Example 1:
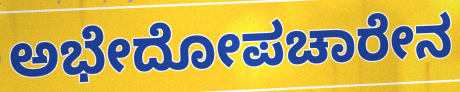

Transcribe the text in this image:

ಅಭೇದೋಪಚಾರೇನ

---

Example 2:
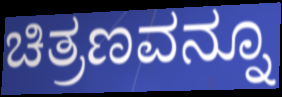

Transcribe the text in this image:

ಚಿತ್ರಣವನ್ನೂ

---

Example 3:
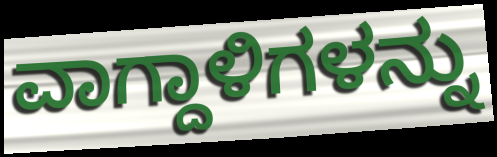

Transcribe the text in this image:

ವಾಗ್ದಾಳಿಗಳನ್ನು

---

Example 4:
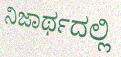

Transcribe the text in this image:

ನಿಜಾರ್ಥದಲ್ಲಿ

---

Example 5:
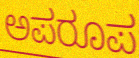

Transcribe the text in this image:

ಅಪರೂಪ